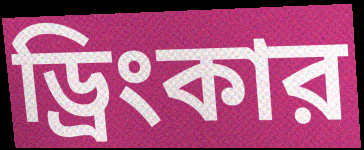
ড্রিংকার